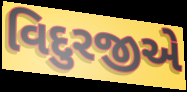
વિદુરજીએ